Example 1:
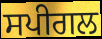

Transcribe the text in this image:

ਸਪੀਗਲ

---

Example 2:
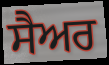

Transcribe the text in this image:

ਸੈਅਰ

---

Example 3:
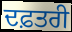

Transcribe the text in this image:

ਦਫ਼ਤਰੀ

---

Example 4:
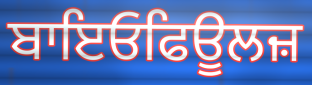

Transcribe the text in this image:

ਬਾਇਓਫਿਊਲਜ਼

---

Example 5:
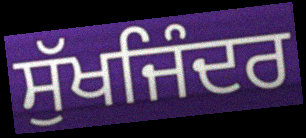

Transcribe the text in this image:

ਸੁੱਖਜਿੰਦਰ